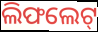
ଲିଫଲେଟ୍